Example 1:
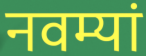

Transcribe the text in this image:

नवम्यां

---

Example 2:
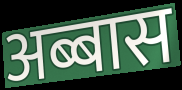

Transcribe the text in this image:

अब्बास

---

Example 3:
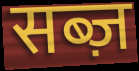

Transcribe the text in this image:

सब्ज़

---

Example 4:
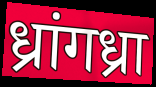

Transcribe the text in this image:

ध्रांगध्रा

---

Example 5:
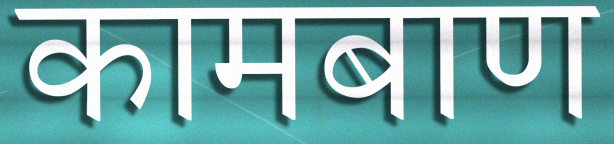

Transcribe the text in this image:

कामबाण